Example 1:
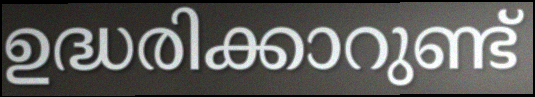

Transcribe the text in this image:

ഉദ്ധരിക്കാറുണ്ട്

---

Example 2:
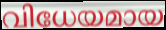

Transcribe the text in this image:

വിധേയമായ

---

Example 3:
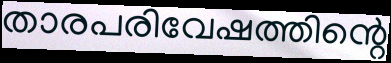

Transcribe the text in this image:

താരപരിവേഷത്തിന്റെ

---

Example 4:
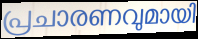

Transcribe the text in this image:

പ്രചാരണവുമായി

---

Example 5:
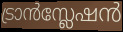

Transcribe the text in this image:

ട്രാൻസ്ലേഷൻ